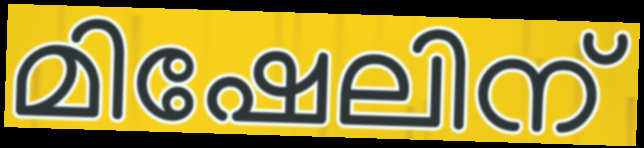
മിഷേലിന്